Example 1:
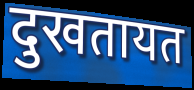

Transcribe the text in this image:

दुखतायत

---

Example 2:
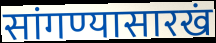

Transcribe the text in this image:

सांगण्यासारखं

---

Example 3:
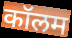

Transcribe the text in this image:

कॉलम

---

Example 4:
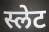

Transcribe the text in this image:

स्लेट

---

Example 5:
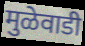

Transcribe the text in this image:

मुळेवाडी